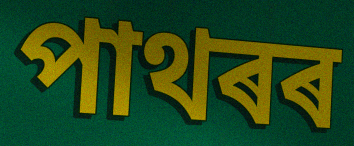
পাথৰৰ